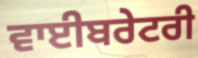
ਵਾਈਬਰੇਟਰੀ